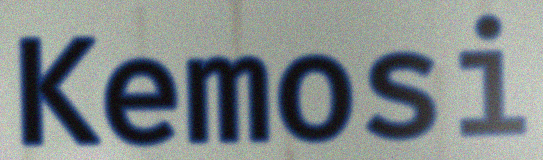
Kemosi